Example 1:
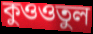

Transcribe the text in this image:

কুওওতুল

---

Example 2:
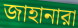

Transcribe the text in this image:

জাহানারা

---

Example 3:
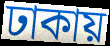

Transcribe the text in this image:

ঢাকায়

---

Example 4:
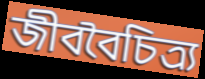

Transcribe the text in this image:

জীববৈচিত্র্য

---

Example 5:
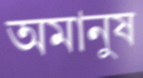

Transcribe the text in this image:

অমানুষ